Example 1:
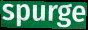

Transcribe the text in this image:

spurge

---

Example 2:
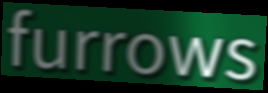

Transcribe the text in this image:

furrows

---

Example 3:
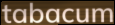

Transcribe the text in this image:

tabacum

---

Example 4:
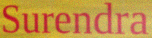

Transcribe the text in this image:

Surendra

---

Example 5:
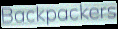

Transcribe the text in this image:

Backpackers